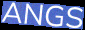
ANGS